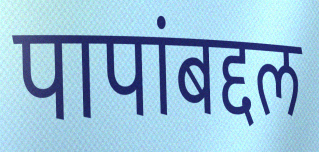
पापांबद्दल